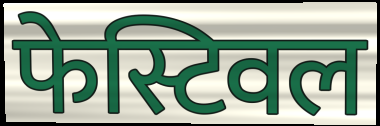
फेस्टिवल